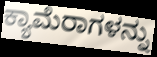
ಕ್ಯಾಮೆರಾಗಳನ್ನು